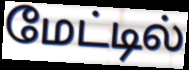
மேட்டில்